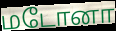
மடோனா